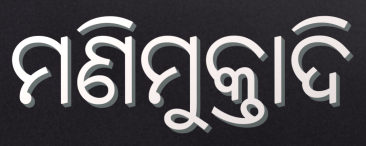
ମଣିମୁକ୍ତାଦି